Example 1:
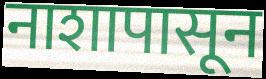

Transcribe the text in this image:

नाशापासून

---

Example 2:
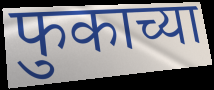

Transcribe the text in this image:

फुकाच्या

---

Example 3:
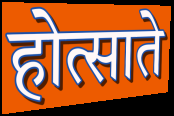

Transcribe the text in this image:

होत्साते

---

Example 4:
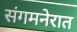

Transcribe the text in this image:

संगमनेरात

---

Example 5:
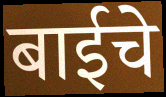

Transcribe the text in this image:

बाईचे